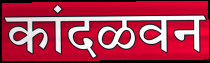
कांदळवन